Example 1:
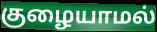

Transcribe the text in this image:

குழையாமல்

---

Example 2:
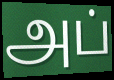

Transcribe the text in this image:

அப்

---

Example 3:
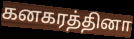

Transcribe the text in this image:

கனகரத்தினா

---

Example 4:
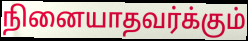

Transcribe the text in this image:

நினையாதவர்க்கும்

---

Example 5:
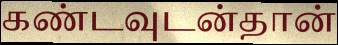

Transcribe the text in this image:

கண்டவுடன்தான்